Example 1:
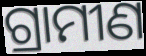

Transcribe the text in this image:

ଗ୍ରାମୀଣ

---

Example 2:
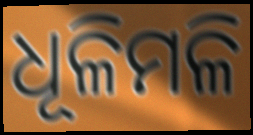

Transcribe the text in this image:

ଧୂଳିମଳି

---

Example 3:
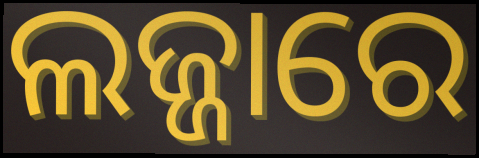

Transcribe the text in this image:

ଲଜ୍ଜାରେ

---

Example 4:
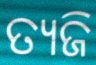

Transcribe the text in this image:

ତ୍ୟଜି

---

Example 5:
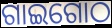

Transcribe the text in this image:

ଗାଇଗୋଠ